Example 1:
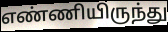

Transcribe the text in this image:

எண்ணியிருந்து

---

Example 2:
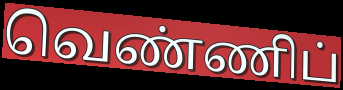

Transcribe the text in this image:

வெண்ணிப்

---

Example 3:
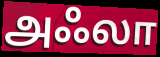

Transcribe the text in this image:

அஃலா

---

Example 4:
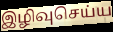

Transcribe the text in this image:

இழிவுசெய்ய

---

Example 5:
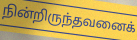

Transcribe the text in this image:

நின்றிருந்தவனைக்